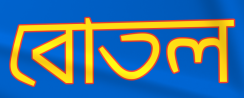
বোতল